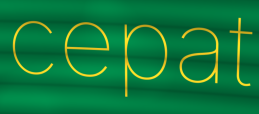
cepat